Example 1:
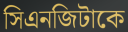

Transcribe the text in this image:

সিএনজিটাকে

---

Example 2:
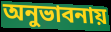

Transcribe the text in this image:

অনুভাবনায়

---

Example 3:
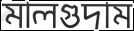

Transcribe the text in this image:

মালগুদাম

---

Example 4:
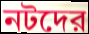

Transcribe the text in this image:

নটদের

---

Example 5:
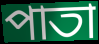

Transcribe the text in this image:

পাতা